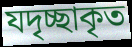
যদৃচ্ছাকৃত